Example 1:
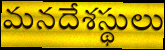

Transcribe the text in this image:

మనదేశస్థులు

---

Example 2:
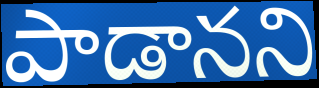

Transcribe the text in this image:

పాడానని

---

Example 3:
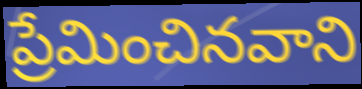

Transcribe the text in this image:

ప్రేమించినవాని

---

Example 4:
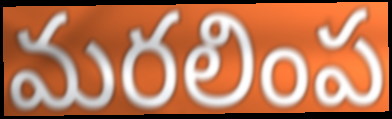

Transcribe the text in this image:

మరలింప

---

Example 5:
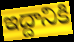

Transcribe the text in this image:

ఇద్దానికి